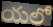
యలో